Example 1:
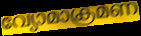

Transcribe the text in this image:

വ്യോമാക്രമണ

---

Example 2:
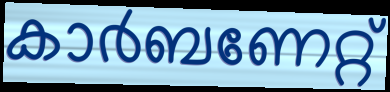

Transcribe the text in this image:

കാർബണേറ്റ്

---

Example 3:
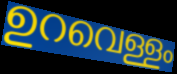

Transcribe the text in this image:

ഉറവെള്ളം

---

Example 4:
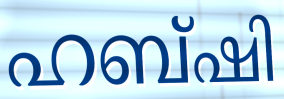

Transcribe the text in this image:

ഹബ്ഷി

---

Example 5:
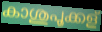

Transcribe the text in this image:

കാശുപൂക്കള്